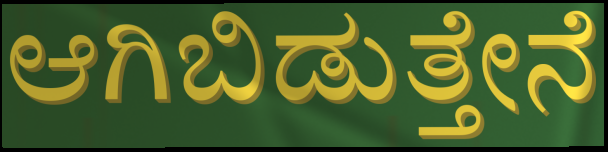
ಆಗಿಬಿಡುತ್ತೇನೆ